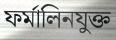
ফর্মালিনযুক্ত